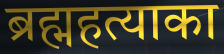
ब्रह्महत्याका